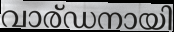
വാര്ഡനായി